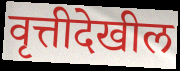
वृत्तीदेखील